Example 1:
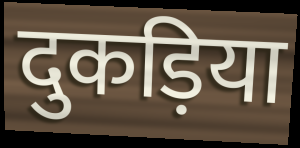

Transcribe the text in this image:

दुकड़िया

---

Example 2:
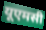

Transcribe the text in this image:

यूएमसी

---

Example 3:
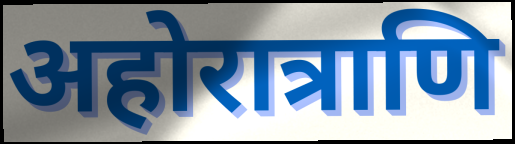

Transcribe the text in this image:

अहोरात्राणि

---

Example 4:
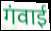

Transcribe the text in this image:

गंवाई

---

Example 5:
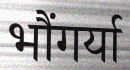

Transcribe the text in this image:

भौंगर्या